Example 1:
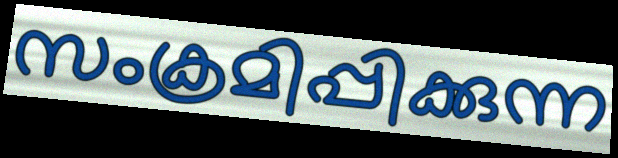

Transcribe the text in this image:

സംക്രമിപ്പിക്കുന്ന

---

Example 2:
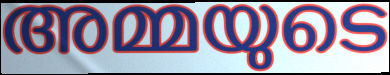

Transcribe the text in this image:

അമ്മയുടെ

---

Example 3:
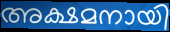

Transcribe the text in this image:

അക്ഷമനായി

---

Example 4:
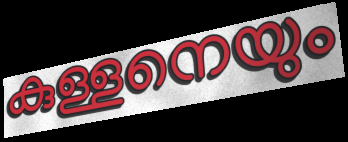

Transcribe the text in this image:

കുള്ളനെയും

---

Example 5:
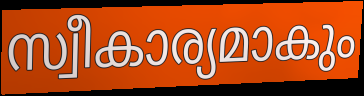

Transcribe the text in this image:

സ്വീകാര്യമാകും